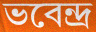
ভবেন্দ্ৰ